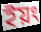
ইয়ং